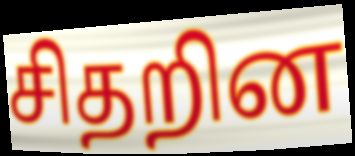
சிதறின